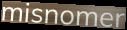
misnomer